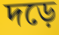
দড়ে